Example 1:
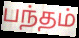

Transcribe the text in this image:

பந்தம்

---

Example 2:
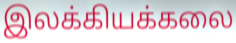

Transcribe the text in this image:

இலக்கியக்கலை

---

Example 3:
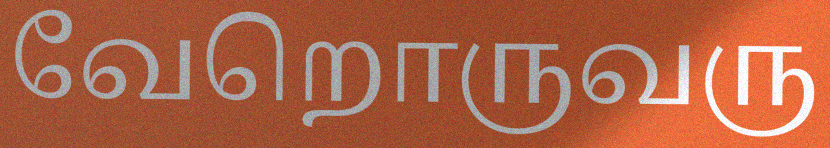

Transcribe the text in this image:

வேறொருவரு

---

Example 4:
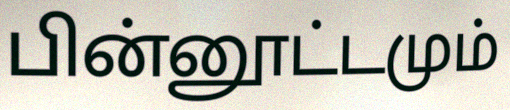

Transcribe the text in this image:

பின்னூட்டமும்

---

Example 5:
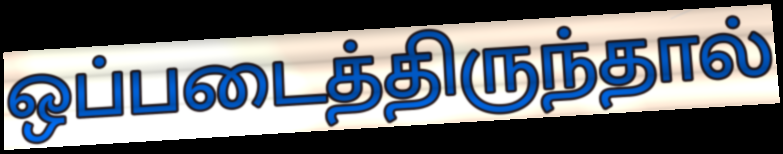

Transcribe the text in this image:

ஒப்படைத்திருந்தால்